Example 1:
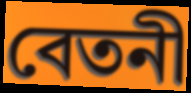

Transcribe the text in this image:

বেতনী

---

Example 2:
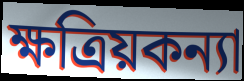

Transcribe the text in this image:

ক্ষত্রিয়কন্যা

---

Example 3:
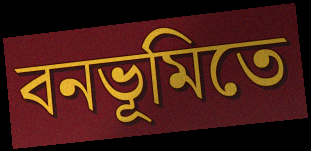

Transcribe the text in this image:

বনভূমিতে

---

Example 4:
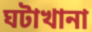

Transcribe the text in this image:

ঘটাখানা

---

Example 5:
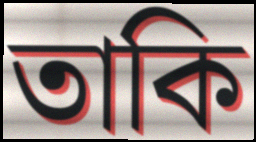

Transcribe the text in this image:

তাকি